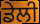
ਡੇਲੀ